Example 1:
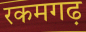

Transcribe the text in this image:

रकमगढ़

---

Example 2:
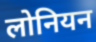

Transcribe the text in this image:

लोनियन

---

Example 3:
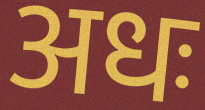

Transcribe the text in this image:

अधः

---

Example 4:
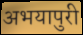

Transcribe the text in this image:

अभयापुरी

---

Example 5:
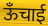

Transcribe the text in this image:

ऊँचाई